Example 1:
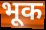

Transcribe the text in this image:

भूक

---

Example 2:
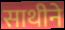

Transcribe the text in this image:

साथीने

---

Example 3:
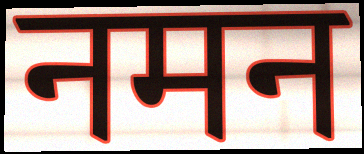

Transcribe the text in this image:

नमन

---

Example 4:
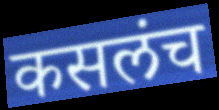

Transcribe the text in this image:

कसलंच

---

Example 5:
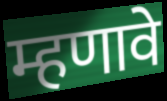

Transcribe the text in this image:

म्हणावे